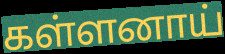
கள்ளனாய்